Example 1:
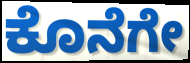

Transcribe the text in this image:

ಕೊನೆಗೇ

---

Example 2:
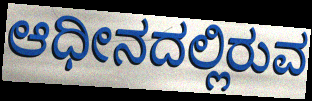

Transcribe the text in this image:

ಆಧೀನದಲ್ಲಿರುವ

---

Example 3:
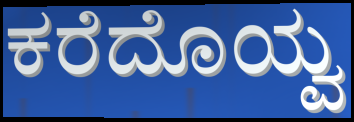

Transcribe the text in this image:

ಕರೆದೊಯ್ವ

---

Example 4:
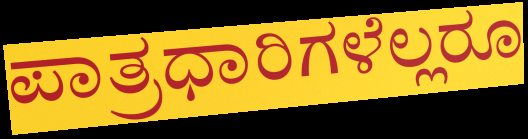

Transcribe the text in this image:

ಪಾತ್ರಧಾರಿಗಳೆಲ್ಲರೂ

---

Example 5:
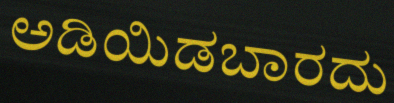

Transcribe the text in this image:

ಅಡಿಯಿಡಬಾರದು